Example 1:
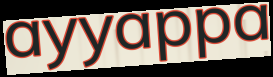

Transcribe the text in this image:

ayyappa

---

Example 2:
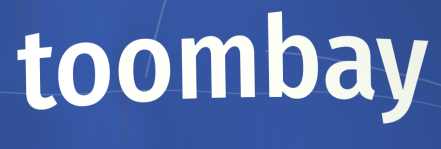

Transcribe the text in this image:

toombay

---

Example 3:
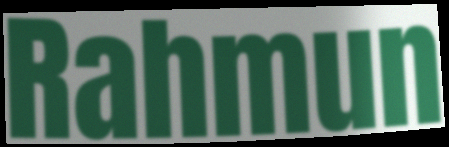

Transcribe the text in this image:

Rahmun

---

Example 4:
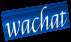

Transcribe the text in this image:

wachat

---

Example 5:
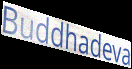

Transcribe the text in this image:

Buddhadeva